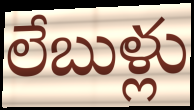
లేబుళ్లు